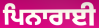
ਪਿਨਾਰਾਈ